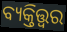
ବ୍ୟକ୍ତିତ୍ତ୍ଵର